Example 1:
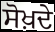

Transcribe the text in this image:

ਸੋਖ਼ਦੇ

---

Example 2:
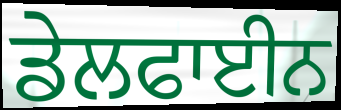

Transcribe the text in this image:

ਡੇਲਫਾਈਨ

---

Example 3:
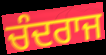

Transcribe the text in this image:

ਚੰਦਰਾਜ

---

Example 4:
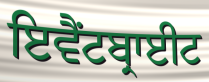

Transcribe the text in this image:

ਇਵੈਂਟਬ੍ਰਾਈਟ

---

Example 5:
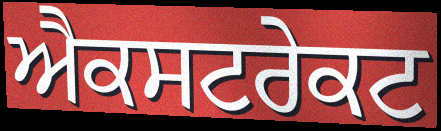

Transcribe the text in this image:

ਐਕਸਟਰੇਕਟ